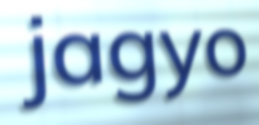
jagyo